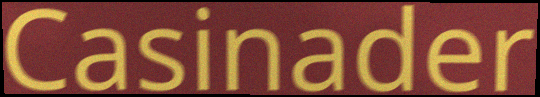
Casinader